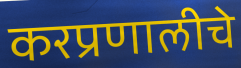
करप्रणालीचे